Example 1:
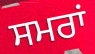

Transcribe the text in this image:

ਸਮਰਾਂ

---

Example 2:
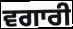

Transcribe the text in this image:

ਵਗਾਰੀ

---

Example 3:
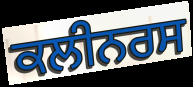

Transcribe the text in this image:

ਕਲੀਨਰਸ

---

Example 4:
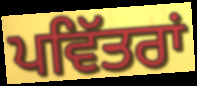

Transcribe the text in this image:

ਪਵਿੱਤਰਾਂ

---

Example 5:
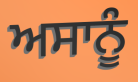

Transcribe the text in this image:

ਅਸਾਨੂੰ